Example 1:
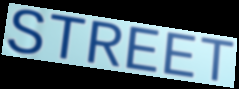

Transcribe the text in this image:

STREET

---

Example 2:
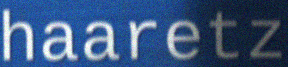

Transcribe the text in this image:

haaretz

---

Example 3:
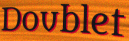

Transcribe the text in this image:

Doublet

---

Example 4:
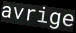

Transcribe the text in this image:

avrige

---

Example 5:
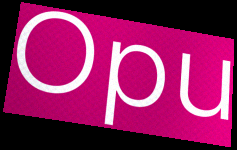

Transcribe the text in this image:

Opu